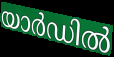
യാർഡിൽ